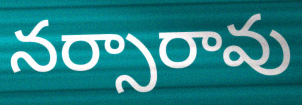
నర్సారావు